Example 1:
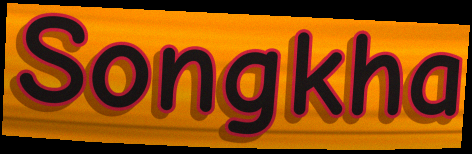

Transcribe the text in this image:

Songkha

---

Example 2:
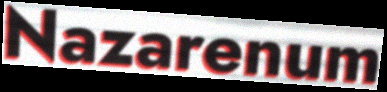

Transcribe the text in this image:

Nazarenum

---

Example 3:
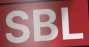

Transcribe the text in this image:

SBL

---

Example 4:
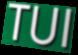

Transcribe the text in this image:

TUI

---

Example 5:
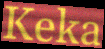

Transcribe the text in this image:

Keka